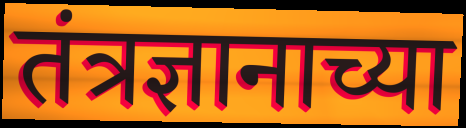
तंत्रज्ञानाच्या